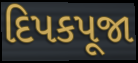
દિપકપૂજા